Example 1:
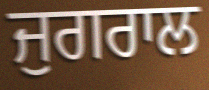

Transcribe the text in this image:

ਜੁਗਰਾਲ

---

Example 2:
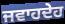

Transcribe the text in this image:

ਜਵਾਹਦੇਹ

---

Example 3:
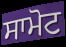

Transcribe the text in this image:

ਸਾਮੋਟ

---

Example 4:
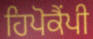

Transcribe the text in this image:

ਹਿਪੋਕੈਂਪੀ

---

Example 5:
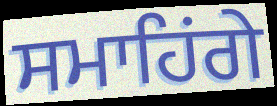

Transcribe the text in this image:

ਸਮਾਹਿਂਗੇ